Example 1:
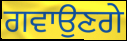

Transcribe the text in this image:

ਗਵਾਉਣਗੇ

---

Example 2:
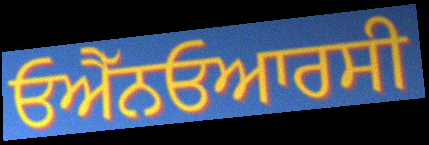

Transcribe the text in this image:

ਓਐੱਨਓਆਰਸੀ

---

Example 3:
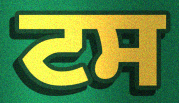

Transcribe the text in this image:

ਟਸ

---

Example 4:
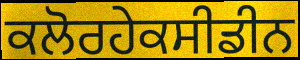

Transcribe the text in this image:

ਕਲੋਰਹੇਕਸੀਡੀਨ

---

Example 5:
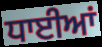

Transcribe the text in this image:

ਧਾਈਆਂ